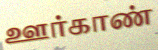
ஊர்காண்